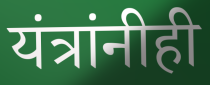
यंत्रांनीही